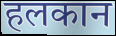
हलकान